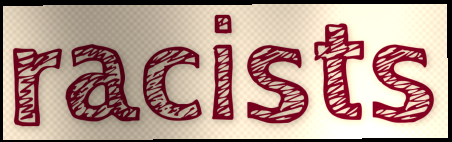
racists